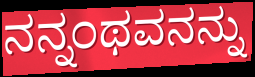
ನನ್ನಂಥವನನ್ನು